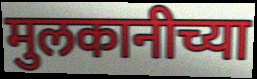
मुलकानीच्या